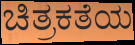
ಚಿತ್ರಕತೆಯ